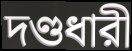
দণ্ডধারী